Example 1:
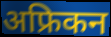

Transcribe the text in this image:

अफ्रिकन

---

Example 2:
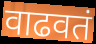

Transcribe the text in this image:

वाढवतं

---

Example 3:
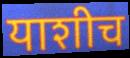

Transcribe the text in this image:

याशीच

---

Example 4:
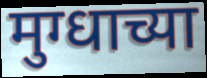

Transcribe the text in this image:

मुग्धाच्या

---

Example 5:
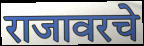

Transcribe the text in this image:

राजावरचे